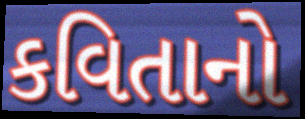
કવિતાનો